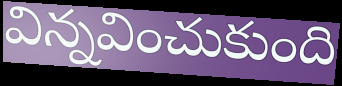
విన్నవించుకుంది